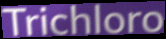
Trichloro